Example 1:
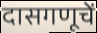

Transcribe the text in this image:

दासगणूचें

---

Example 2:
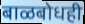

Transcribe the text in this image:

बाळबोधही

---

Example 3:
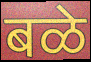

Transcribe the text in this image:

बळे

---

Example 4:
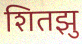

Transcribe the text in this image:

शितझु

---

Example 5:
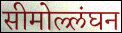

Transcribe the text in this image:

सीमोल्लंघन